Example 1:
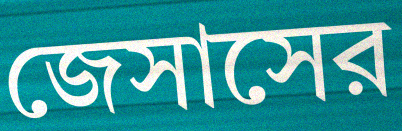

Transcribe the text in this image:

জেসাসের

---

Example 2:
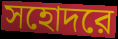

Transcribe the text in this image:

সহোদরে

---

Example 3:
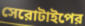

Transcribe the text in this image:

সেরোটাইপের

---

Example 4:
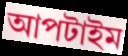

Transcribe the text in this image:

আপটাইম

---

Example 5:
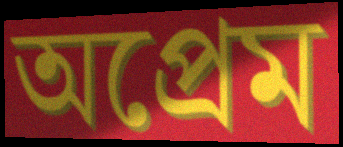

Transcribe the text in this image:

অপ্রেম